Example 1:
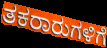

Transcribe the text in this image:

ತಕರಾರುಗಳಿಗೆ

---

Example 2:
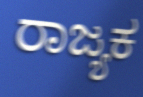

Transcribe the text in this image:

ರಾಜ್ಯಕ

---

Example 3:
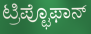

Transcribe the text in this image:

ಟ್ರಿಪ್ಟೊಫಾನ್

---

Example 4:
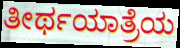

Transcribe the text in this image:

ತೀರ್ಥಯಾತ್ರೆಯ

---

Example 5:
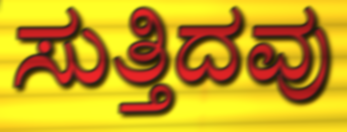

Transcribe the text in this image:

ಸುತ್ತಿದವು